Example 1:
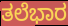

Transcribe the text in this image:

ತಲೆಭಾರ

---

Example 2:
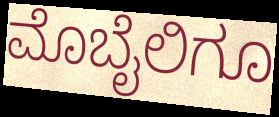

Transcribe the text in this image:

ಮೊಬೈಲಿಗೂ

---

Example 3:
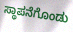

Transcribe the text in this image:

ಸ್ಥಾಪನೆಗೊಂಡು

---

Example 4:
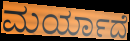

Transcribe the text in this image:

ಮರ್ಯಾದೆ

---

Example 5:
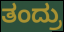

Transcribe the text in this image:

ತಂದ್ರು